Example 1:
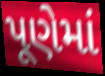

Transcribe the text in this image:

પૂણેમાં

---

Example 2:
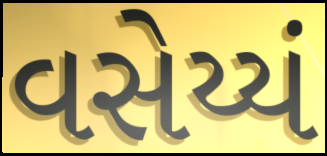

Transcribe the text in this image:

વસેય્યં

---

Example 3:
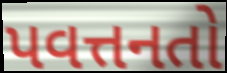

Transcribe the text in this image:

પવત્તનતો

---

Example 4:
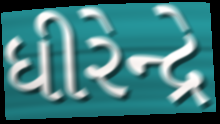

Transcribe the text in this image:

ધીરેન્દ્રે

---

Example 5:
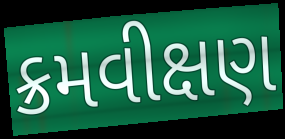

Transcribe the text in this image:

ક્રમવીક્ષણ